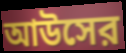
আউসের